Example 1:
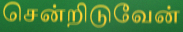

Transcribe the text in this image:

சென்றிடுவேன்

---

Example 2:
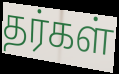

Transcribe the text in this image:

தர்கள்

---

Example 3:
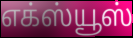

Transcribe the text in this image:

எக்ஸ்யூஸ்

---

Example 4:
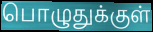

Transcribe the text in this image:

பொழுதுக்குள்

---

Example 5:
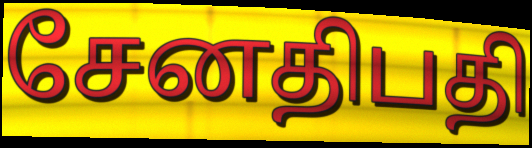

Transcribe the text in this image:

சேனதிபதி